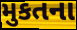
મુકતના